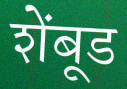
शेंबूड